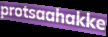
protsaahakke